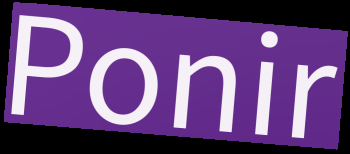
Ponir